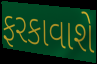
ફરકાવાશે